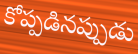
కోప్పడినప్పుడు